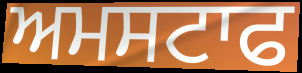
ਅਮਸਟਾਫ